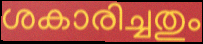
ശകാരിച്ചതും